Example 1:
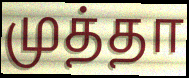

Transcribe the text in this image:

முத்தா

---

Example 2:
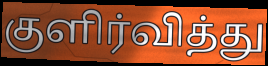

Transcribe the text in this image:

குளிர்வித்து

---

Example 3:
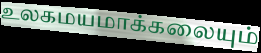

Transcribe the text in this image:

உலகமயமாக்கலையும்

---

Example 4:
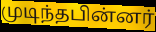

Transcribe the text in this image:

முடிந்தபின்னர்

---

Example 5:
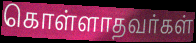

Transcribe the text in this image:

கொள்ளாதவர்கள்